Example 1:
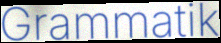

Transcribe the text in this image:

Grammatik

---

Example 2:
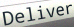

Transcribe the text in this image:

Deliver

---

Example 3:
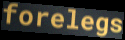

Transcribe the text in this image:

forelegs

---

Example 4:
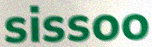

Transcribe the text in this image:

sissoo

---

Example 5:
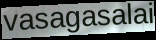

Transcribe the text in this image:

vasagasalai